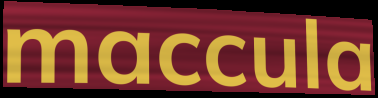
maccula